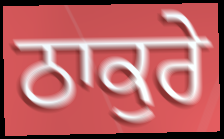
ਠਾਕੁਰੇ